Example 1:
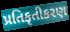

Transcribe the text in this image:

પ્રતિકૃતીકરણ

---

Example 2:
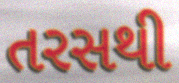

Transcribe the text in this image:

તરસથી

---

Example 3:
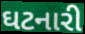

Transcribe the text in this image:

ઘટનારી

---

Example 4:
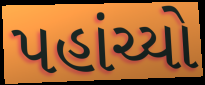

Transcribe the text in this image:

પહાંચ્યો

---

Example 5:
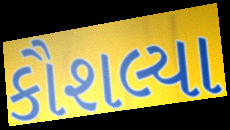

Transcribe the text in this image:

કૌશલ્યા